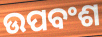
ଉପବଂଶ